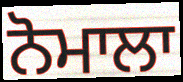
ਨੋਮਾਲਾ